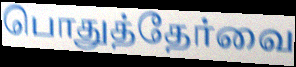
பொதுத்தேர்வை